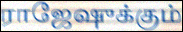
ராஜேஷுக்கும்